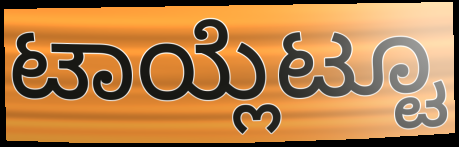
ಟಾಯ್ಲೆಟ್ಟೂ